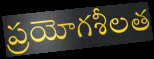
ప్రయోగశీలత